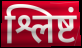
श्लिष्टं